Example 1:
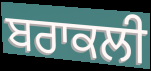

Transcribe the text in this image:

ਬਰਾਕਲੀ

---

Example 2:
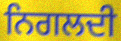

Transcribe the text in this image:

ਨਿਗਲਦੀ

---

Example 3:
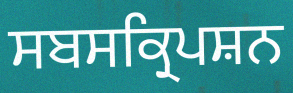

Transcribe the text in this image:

ਸਬਸਕ੍ਰਿਪਸ਼ਨ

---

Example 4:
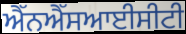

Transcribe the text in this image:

ਐੱਨਐੱਸਆਈਸੀਟੀ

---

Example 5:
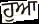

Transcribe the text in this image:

ਹੁਆ